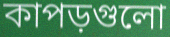
কাপড়গুলো